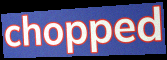
chopped